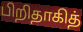
பிறிதாகித்